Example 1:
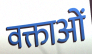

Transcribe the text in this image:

वक्ताओें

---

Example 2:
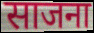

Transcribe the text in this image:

साजना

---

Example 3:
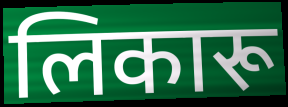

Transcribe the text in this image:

लिकारू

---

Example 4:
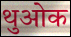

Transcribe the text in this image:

थुओक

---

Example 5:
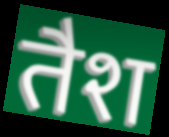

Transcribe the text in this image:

तैश